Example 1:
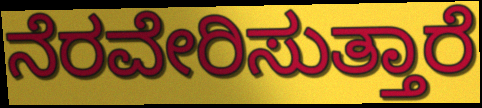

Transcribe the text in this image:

ನೆರವೇರಿಸುತ್ತಾರೆ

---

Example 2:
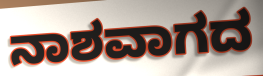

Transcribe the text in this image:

ನಾಶವಾಗದ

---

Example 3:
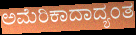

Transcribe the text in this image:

ಅಮೆರಿಕಾದಾದ್ಯಂತ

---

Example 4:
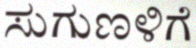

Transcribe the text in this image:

ಸುಗುಣಳಿಗೆ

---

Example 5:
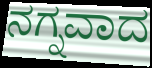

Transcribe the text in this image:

ನಗ್ನವಾದ